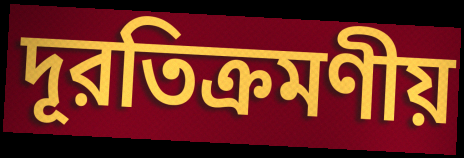
দূরতিক্রমণীয়